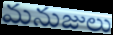
మనుజులు